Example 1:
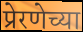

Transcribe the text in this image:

प्रेरणेच्या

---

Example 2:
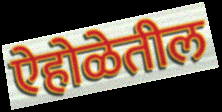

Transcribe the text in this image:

ऐहोळेतील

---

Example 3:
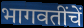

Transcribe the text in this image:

भागवतींचें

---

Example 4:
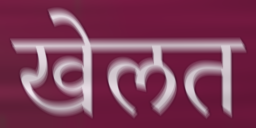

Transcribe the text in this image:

खेलत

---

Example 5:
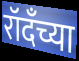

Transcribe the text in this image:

रॉदँच्या